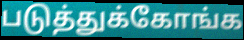
படுத்துக்கோங்க